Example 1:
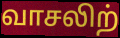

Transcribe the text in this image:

வாசலிற்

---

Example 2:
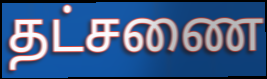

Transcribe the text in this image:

தட்சணை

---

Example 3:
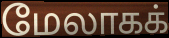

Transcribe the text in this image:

மேலாகக்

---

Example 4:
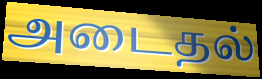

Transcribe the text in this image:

அடைதல்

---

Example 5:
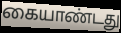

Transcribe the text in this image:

கையாண்டது